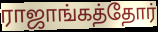
ராஜாங்கத்தோர்